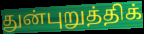
துன்புறுத்திக்